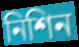
নিশিন